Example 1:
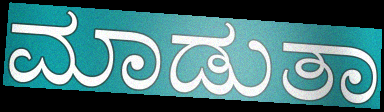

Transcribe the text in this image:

ಮಾಡುತಾ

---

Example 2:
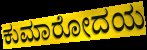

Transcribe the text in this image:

ಕುಮಾರೋದಯ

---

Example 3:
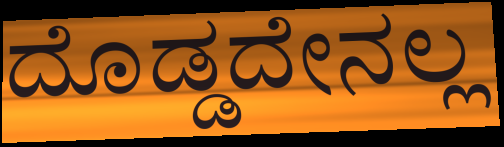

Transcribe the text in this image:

ದೊಡ್ಡದೇನಲ್ಲ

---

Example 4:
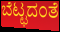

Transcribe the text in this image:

ಬೆಟ್ಟದಂತೆ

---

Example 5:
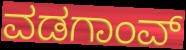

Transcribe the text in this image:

ವಡಗಾಂವ್